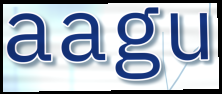
aagu